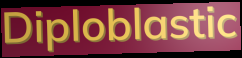
Diploblastic